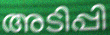
അടിപ്പി